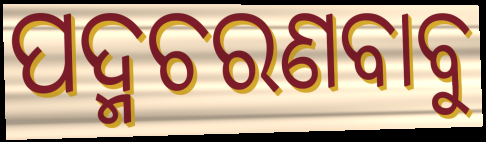
ପଦ୍ମଚରଣବାବୁ